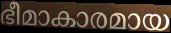
ഭീമാകാരമായ